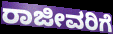
ರಾಜೀವರಿಗೆ